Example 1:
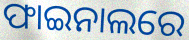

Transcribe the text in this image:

ଫାଇନାଲରେ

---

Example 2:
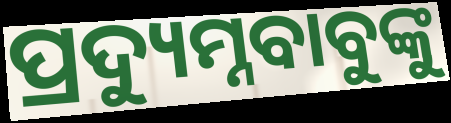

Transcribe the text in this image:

ପ୍ରଦ୍ୟୁମ୍ନବାବୁଙ୍କୁ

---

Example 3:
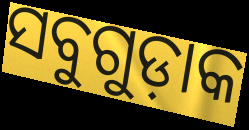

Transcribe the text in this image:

ସବୁଗୁଡ଼ାକ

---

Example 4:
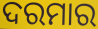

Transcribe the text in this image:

ଦରମାର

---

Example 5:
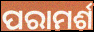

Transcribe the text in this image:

ପରାମର୍ଶ